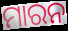
ମାରନ